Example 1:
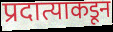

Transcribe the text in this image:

प्रदात्याकडून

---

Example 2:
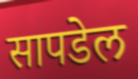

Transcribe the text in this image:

सापडेल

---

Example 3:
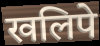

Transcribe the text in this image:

खलिपे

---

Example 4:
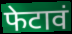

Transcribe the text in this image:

फेटावं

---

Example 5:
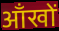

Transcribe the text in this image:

आँखों